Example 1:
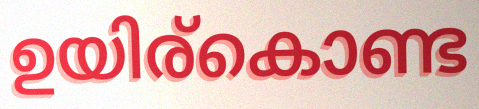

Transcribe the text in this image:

ഉയിര്കൊണ്ട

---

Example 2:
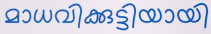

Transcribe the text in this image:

മാധവിക്കുട്ടിയായി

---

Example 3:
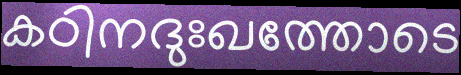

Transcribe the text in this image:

കഠിനദുഃഖത്തോടെ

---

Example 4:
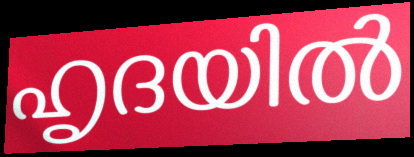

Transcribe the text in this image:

ഹൃദയിൽ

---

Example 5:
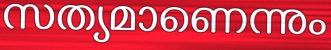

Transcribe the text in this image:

സത്യമാണെന്നും